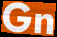
Gn